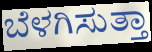
ಬೆಳಗಿಸುತ್ತಾ